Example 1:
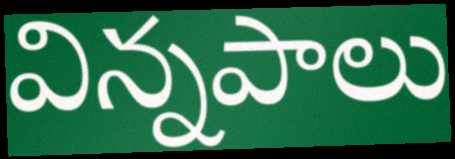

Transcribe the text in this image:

విన్నపాలు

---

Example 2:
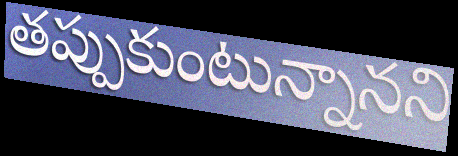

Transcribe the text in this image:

తప్పుకుంటున్నానని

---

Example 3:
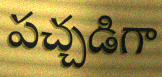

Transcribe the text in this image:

పచ్చడిగా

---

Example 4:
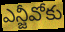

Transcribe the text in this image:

ఎన్జీవోకు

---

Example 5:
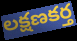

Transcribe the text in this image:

లక్షణకర్త